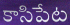
కాసిపేట